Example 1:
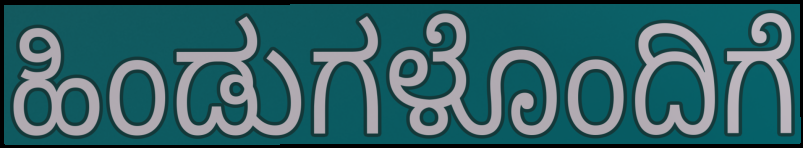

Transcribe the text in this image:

ಹಿಂಡುಗಳೊಂದಿಗೆ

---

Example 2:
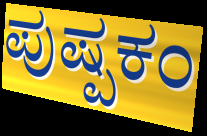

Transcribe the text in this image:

ಪುಷ್ಪಕಂ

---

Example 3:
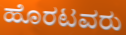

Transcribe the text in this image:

ಹೊರಟವರು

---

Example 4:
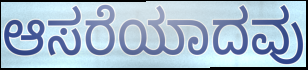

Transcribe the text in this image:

ಆಸರೆಯಾದವು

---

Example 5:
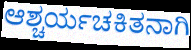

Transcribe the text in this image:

ಆಶ್ಚರ್ಯಚಕಿತನಾಗಿ